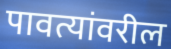
पावत्यांवरील